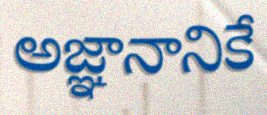
అజ్ఞానానికే